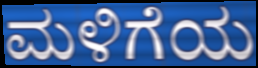
ಮಳಿಗೆಯ